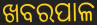
ଖବରପାଳ